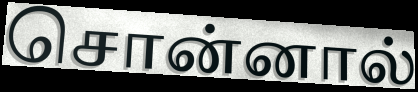
சொன்னால்